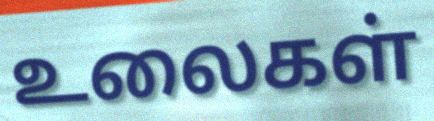
உலைகள்